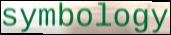
symbology